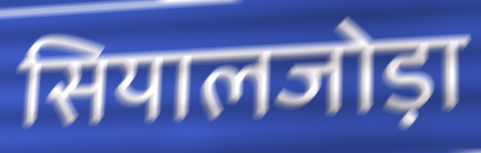
सियालजोड़ा